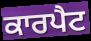
ਕਾਰਪੈਟ